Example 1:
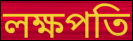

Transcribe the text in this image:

লক্ষপতি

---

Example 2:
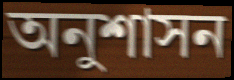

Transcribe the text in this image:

অনুশাসন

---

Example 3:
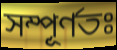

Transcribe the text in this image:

সম্পূর্ণতঃ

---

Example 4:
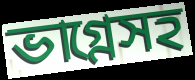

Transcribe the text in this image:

ভাগ্নেসহ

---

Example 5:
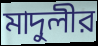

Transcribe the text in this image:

মাদুলীর